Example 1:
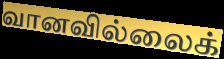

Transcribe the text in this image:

வானவில்லைக்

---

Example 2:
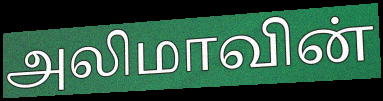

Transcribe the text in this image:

அலிமாவின்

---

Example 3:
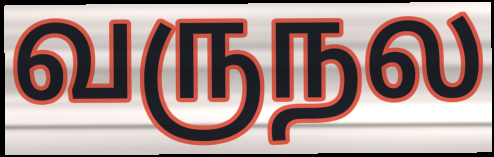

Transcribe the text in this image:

வருநல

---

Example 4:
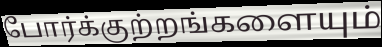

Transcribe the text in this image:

போர்க்குற்றங்களையும்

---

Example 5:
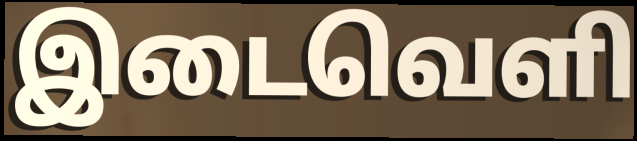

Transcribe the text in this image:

இடைவெளி